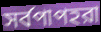
সর্বপাপহরা